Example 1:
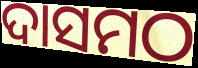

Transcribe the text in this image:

ଦାସମଠ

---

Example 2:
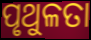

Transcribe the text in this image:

ପୃଥୁଳତା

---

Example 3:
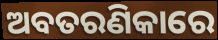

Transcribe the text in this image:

ଅବତରଣିକାରେ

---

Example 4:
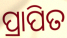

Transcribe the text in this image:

ପ୍ରାପିତ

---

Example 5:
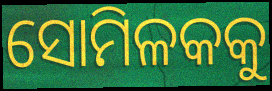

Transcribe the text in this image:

ସୋମିଳକକୁ